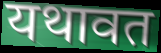
यथावत